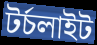
টর্চলাইট